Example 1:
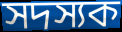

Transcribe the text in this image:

সদস্যক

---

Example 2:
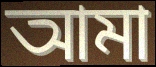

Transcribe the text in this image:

আমা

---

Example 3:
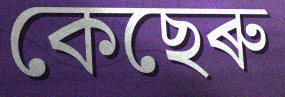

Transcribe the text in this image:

কেছেৰু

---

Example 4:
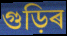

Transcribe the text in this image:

গুড়িৰ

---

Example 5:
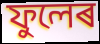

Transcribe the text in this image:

ফুলেৰ